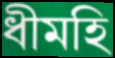
ধীমহি